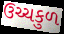
ઉચ્ચકુળ